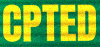
CPTED